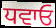
ਧਵਾਓ